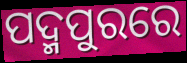
ପଦ୍ମପୁରରେ